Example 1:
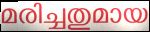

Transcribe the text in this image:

മരിച്ചതുമായ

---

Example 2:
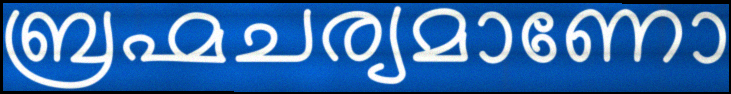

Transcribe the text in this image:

ബ്രഹ്മചര്യമാണോ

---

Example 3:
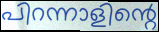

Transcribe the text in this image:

പിറന്നാളിന്റെ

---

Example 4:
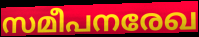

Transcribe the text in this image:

സമീപനരേഖ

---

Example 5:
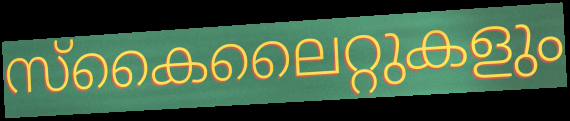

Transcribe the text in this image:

സ്കൈലൈറ്റുകളും